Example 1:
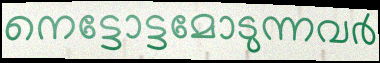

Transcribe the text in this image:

നെട്ടോട്ടമോടുന്നവർ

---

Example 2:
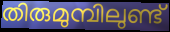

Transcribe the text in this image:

തിരുമുമ്പിലുണ്ട്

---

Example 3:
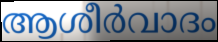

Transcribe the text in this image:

ആശീർവാദം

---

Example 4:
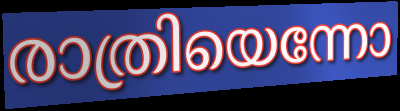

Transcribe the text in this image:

രാത്രിയെന്നോ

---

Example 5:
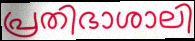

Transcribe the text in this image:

പ്രതിഭാശാലി